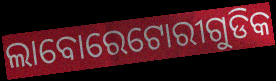
ଲାବୋରେଟୋରୀଗୁଡିକ